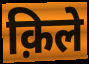
क़िले